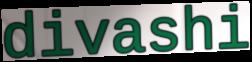
divashi